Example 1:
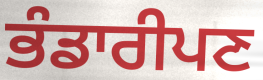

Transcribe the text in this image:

ਭੰਡਾਰੀਪਣ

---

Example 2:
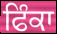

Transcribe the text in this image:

ਫਿੰਕਾ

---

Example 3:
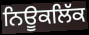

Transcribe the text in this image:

ਨਿਊਕਲਿੱਕ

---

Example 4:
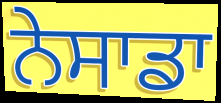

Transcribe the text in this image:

ਨੇਸਾਡਾ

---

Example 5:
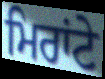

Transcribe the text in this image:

ਮਿਰਾਂਟੇ